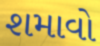
શમાવો